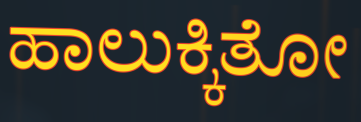
ಹಾಲುಕ್ಕಿತೋ